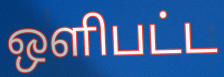
ஒளிபட்ட